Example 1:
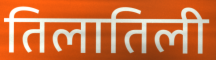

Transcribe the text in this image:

तिलातिली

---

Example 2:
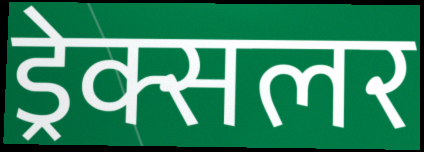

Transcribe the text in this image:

ड्रेक्सलर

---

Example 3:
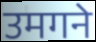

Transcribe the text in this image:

उमगने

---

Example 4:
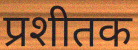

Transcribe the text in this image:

प्रशीतक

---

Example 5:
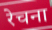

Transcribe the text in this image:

रेचना